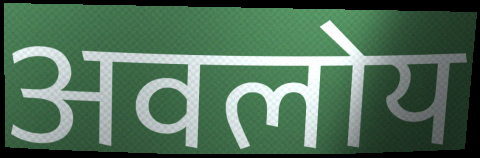
अवलोय